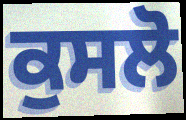
ਕੁਸਲੋ